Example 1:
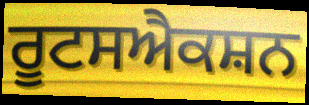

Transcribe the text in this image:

ਰੂਟਸਐਕਸ਼ਨ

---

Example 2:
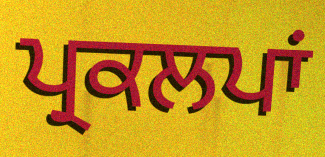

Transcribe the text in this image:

ਪ੍ਰਕਲਪਾਂ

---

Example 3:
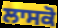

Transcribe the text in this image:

ਲਾਸਕੋ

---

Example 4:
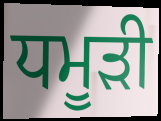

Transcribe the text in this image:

ਧਮੂੜੀ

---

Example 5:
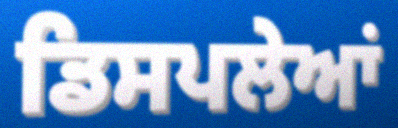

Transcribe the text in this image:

ਡਿਸਪਲੇਆਂ